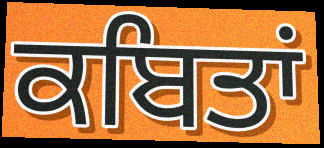
ਕਬਿਤਾਂ